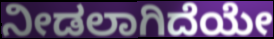
ನೀಡಲಾಗಿದೆಯೇ